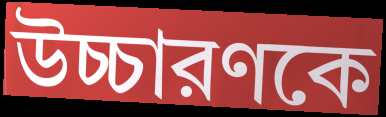
উচ্চারণকে